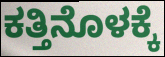
ಕತ್ತಿನೊಳಕ್ಕೆ